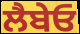
ਲੈਬੇਓ